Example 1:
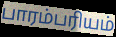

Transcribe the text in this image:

பாரம்பரியம்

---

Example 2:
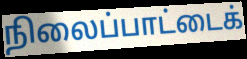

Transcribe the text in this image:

நிலைப்பாட்டைக்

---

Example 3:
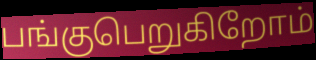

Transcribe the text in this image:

பங்குபெறுகிறோம்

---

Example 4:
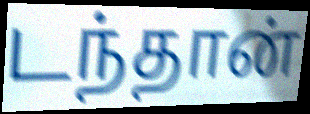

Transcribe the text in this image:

டந்தான்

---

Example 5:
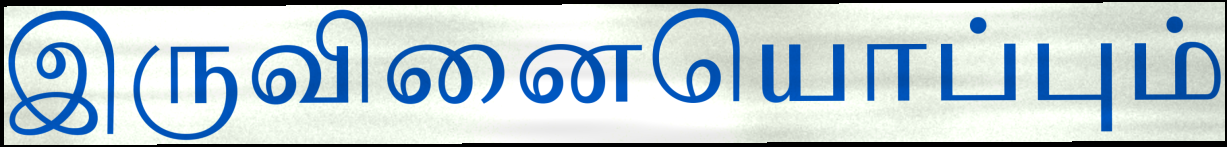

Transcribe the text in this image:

இருவினையொப்பும்